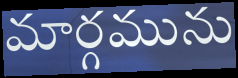
మార్గమును